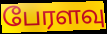
பேரளவு